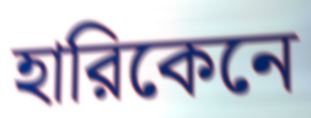
হারিকেনে